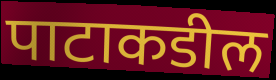
पाटाकडील